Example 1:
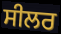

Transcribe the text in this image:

ਸੀਲਰ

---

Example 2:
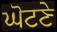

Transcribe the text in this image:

ਘੋਟਣੇ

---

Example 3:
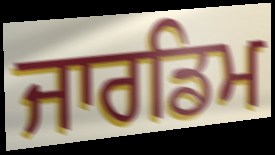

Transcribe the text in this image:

ਜਾਰਡਿਮ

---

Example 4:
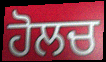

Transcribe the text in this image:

ਹੋਲਚ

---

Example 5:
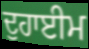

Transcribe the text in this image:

ਦੁਹਾਈਮ